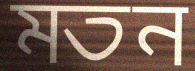
মতন